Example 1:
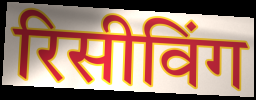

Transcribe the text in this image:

रिसीविंग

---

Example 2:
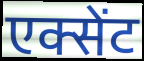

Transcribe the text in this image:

एक्सेंट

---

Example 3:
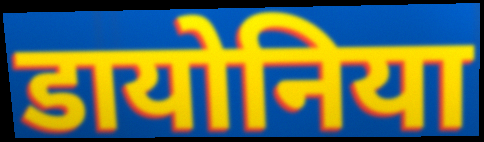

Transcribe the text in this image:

डायोनिया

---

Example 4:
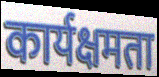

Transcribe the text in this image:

कार्यक्षमता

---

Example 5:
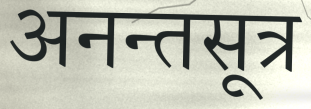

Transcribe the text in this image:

अनन्तसूत्र